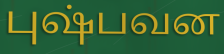
புஷ்பவன